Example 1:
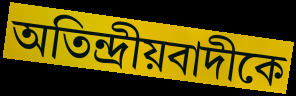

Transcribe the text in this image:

অতিন্দ্রীয়বাদীকে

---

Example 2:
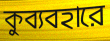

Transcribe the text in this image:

কুব্যবহারে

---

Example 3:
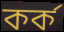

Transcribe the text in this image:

কর্ক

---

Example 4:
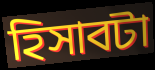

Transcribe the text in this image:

হিসাবটা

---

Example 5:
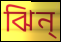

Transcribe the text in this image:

ঝিন্